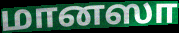
மானஸா